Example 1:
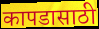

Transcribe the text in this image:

कापडासाठी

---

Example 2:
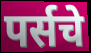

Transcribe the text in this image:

पर्सचे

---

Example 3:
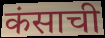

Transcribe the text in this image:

कंसाची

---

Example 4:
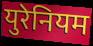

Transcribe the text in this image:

युरेनियम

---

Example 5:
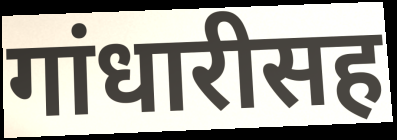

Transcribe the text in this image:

गांधारीसह